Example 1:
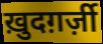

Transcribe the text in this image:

ख़ुदग़र्ज़ी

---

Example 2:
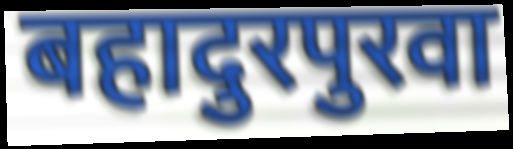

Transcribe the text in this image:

बहादुरपुरवा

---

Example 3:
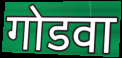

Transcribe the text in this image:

गोडवा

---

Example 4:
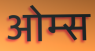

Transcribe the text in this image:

ओम्स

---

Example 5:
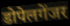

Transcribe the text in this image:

डोपेलगेंजर